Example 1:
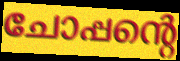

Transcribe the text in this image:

ചോപ്പന്റെ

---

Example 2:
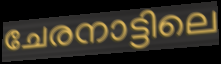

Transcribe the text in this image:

ചേരനാട്ടിലെ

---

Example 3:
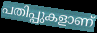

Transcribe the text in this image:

പതിപ്പുകളാണ്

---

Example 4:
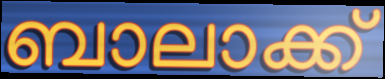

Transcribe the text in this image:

ബാലാക്ക്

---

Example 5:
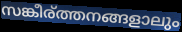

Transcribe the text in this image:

സങ്കീര്ത്തനങ്ങളാലും